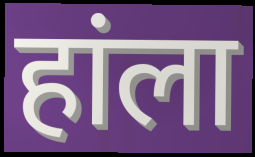
हांला